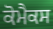
ਕੋਮੈਕਸ